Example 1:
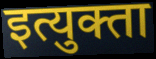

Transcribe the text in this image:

इत्युक्ता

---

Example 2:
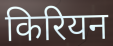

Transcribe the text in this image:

किरियन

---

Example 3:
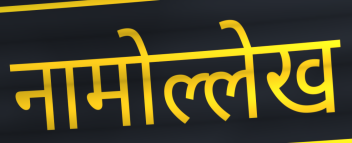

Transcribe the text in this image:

नामोल्लेख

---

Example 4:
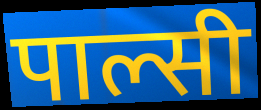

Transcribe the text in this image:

पाल्सी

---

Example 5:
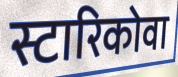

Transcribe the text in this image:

स्टारिकोवा